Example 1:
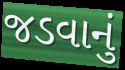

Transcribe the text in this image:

જડવાનું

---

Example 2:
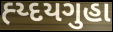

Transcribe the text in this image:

હ્ય્દયગુહા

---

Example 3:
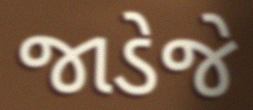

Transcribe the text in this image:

જાડેજે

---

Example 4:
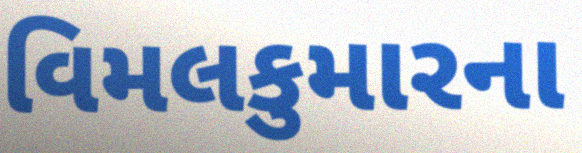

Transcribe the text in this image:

વિમલકુમારના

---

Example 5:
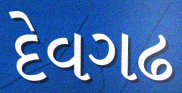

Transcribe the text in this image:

દેવગઢ